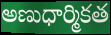
అణుధార్మికత